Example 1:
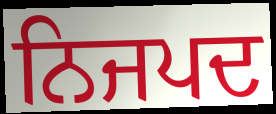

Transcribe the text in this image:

ਨਿਜਪਦ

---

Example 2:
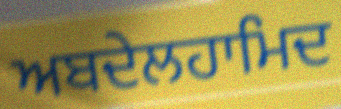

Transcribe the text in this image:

ਅਬਦੇਲਹਾਮਿਦ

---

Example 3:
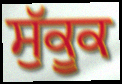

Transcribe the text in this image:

ਸੁੱਕੂਕ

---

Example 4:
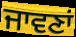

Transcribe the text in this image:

ਜਾਵਣਾਂ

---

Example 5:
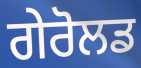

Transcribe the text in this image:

ਗੇਰੋਲਡ